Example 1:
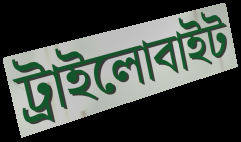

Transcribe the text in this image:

ট্রাইলোবাইট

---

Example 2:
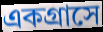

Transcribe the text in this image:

একগ্রাসে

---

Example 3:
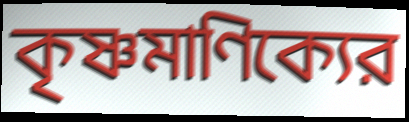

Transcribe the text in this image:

কৃষ্ণমাণিক্যের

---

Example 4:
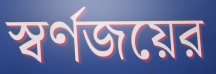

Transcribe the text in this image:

স্বর্ণজয়ের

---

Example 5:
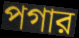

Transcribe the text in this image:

পগার